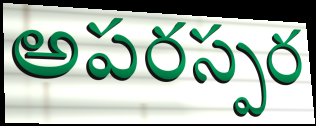
అపరస్పర